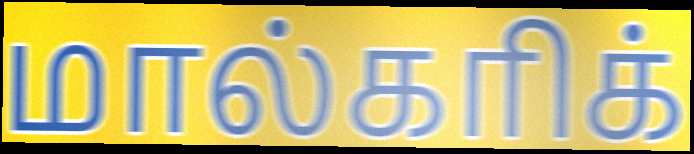
மால்கரிக்